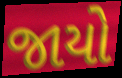
જાયો